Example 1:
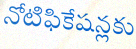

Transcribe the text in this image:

నోటిఫికేషన్లకు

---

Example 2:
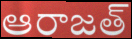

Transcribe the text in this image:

ఆరాజత్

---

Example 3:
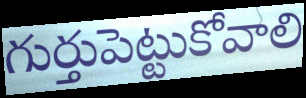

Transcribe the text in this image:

గుర్తుపెట్టుకోవాలి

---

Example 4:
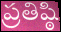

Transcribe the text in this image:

ప్రతిష్ఠి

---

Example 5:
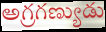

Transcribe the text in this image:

అగ్రగణ్యుడు